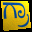
ಗ್ರಾ